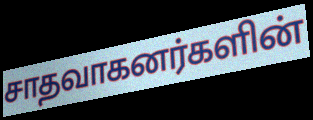
சாதவாகனர்களின்